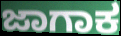
ಜಾಗಾಕ